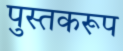
पुस्तकरूप